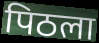
पिठला